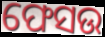
ଫେସଉ